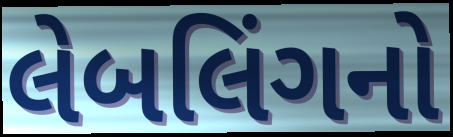
લેબલિંગનો